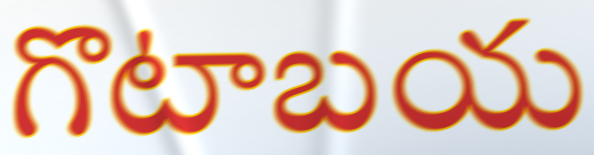
గొటాబయ